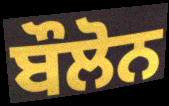
ਬੌਲੋਨ